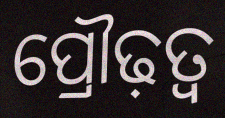
ପ୍ରୌଢ଼ତ୍ୱ